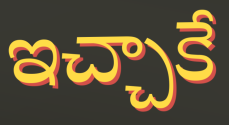
ఇచ్చాకే